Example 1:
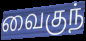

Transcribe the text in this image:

வைகுந்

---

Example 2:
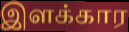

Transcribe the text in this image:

இளக்கார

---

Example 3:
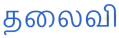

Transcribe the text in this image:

தலைவி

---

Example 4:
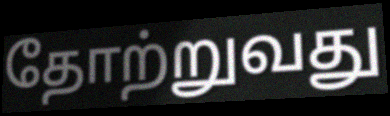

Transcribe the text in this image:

தோற்றுவது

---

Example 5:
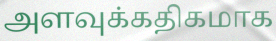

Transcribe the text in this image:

அளவுக்கதிகமாக